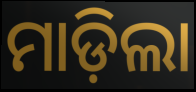
ମାଡ଼ିଲା